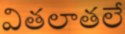
వితలాతలే